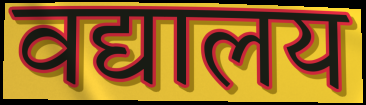
वद्यालय